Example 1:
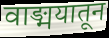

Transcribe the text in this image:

वाङ्मयातून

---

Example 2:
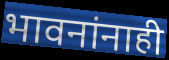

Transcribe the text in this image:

भावनांनाही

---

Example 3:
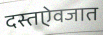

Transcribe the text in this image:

दस्तऐवजात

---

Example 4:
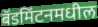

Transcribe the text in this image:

बॅडमिंटनमधील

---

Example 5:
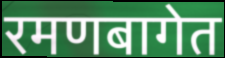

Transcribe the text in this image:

रमणबागेत